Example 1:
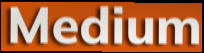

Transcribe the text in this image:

Medium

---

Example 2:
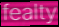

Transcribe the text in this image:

fealty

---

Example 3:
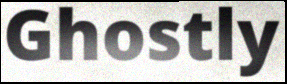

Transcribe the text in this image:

Ghostly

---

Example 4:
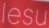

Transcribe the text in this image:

Iesu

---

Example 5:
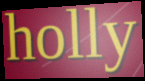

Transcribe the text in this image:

holly